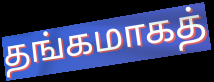
தங்கமாகத்